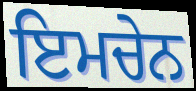
ਇਮਚੇਨ